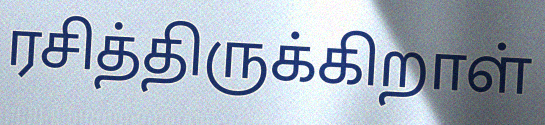
ரசித்திருக்கிறாள்